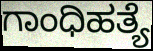
ಗಾಂಧಿಹತ್ಯೆ